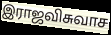
இராஜவிசுவாச